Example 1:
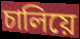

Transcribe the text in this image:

চালিয়ে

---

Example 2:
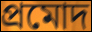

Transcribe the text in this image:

প্ৰমোদ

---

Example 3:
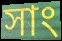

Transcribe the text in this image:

সাং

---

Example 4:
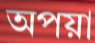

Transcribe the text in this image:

অপয়া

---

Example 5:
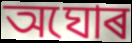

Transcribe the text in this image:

অঘোৰ